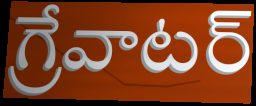
గ్రేవాటర్